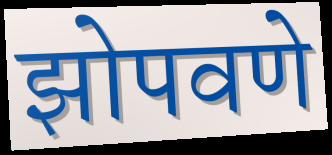
झोपवणे